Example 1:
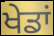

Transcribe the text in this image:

ਖੇਡਾਂ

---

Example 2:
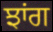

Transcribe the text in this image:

ਝਾਂਗ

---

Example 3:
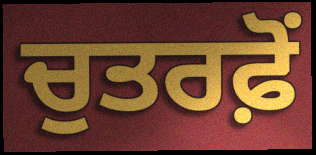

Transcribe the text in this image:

ਚੁਤਰਫ਼ੋਂ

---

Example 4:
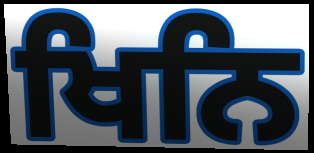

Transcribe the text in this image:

ਖਿਨਿ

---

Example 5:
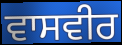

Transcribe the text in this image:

ਵਾਸਵੀਰ